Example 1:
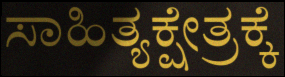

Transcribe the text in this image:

ಸಾಹಿತ್ಯಕ್ಷೇತ್ರಕ್ಕೆ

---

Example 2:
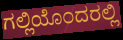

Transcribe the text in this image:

ಗಲ್ಲಿಯೊಂದರಲ್ಲಿ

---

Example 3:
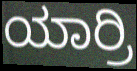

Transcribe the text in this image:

ಯಾರ್ರಿ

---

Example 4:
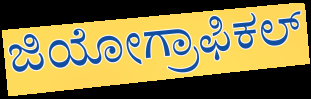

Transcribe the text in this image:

ಜಿಯೋಗ್ರಾಫಿಕಲ್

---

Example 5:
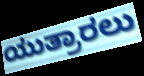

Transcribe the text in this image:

ಯುತ್ರಾರಲು